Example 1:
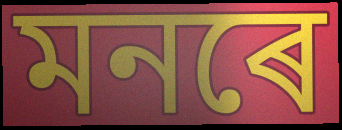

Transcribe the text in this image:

মনৰে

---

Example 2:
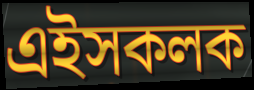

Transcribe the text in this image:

এইসকলক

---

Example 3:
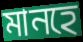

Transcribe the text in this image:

মানহে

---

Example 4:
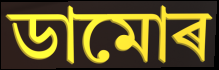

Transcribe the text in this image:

ডামোৰ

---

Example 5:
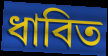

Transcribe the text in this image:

ধাবিত